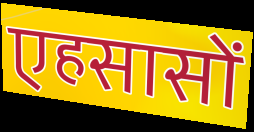
एहसासों